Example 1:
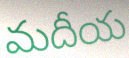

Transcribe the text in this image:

మదీయ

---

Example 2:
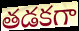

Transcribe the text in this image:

తడకగా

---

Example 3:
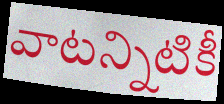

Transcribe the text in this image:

వాటన్నిటికీ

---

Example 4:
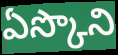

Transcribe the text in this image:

ఏస్కొని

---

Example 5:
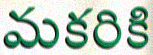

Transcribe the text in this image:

మకరికి